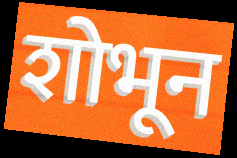
शोभून